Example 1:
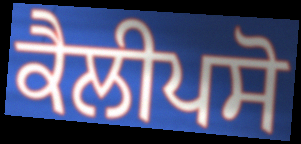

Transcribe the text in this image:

ਕੈਲੀਪਸੋ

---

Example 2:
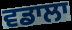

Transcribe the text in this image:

ਵਡਾਲਾ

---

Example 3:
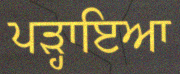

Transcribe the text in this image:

ਪੜ੍ਹਾਇਆ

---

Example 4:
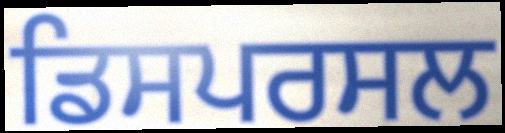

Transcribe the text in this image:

ਡਿਸਪਰਸਲ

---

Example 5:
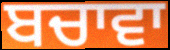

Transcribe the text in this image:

ਬਚਾਵਾ